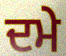
ਦਮੇ